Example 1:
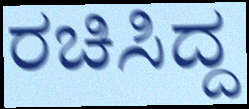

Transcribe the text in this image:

ರಚಿಸಿದ್ದ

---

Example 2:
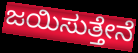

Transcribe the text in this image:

ಜಯಿಸುತ್ತೇನೆ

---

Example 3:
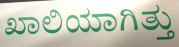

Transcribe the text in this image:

ಖಾಲಿಯಾಗಿತ್ತು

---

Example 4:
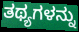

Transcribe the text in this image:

ತಥ್ಯಗಳನ್ನು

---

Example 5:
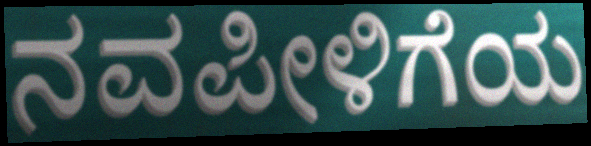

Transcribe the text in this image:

ನವಪೀಳಿಗೆಯ